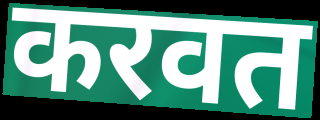
करवत